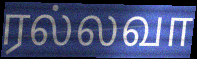
ரல்லவா